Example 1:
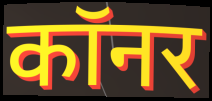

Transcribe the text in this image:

कॉनर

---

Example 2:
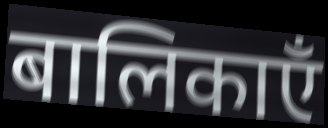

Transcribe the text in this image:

बालिकाएँ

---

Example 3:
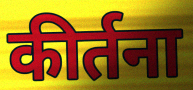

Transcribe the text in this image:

कीर्तना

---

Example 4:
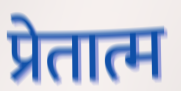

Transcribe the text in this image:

प्रेतात्म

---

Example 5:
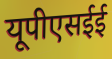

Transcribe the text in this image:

यूपीएसईई